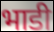
भाडी